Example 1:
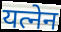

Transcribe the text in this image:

यत्नेन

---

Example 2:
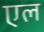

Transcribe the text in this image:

एल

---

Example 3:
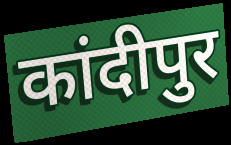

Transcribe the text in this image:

कांदीपुर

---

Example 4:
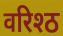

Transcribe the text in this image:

वरिश्ठ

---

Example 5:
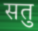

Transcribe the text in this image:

सतु